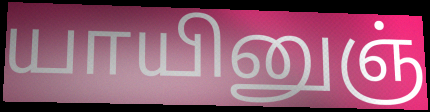
யாயினுஞ்